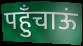
पहुँचाऊं